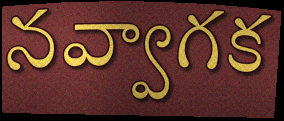
నవ్వాగక